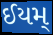
ઈયમ્